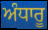
ਅੰਧਾਰੂ